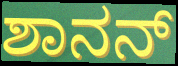
ಶಾನನ್